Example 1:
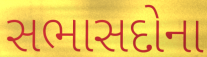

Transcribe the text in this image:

સભાસદોના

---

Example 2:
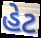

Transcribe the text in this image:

હેટ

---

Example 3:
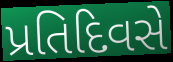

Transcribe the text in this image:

પ્રતિદિવસે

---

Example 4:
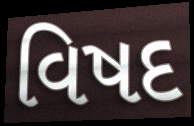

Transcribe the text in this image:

વિષદ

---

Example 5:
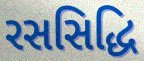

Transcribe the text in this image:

રસસિદ્ધિ